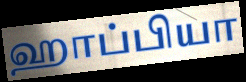
ஹாப்பியா